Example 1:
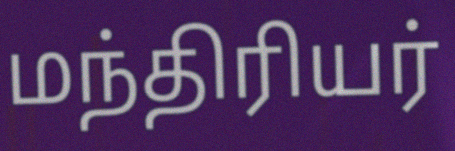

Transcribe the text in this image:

மந்திரியர்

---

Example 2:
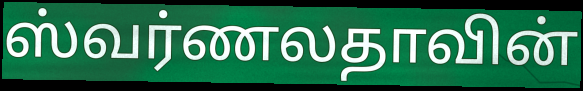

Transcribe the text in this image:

ஸ்வர்ணலதாவின்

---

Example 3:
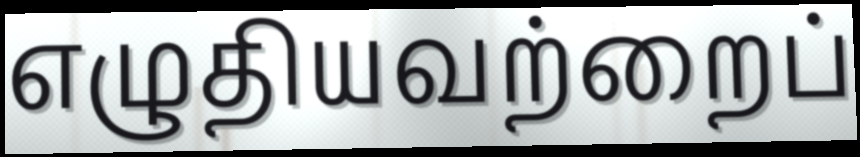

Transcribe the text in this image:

எழுதியவற்றைப்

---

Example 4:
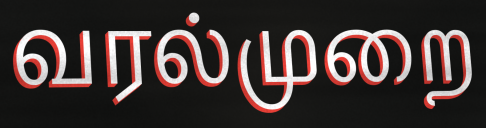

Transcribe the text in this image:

வரல்முறை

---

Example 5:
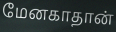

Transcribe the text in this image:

மேனகாதான்